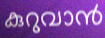
കുറുവാൻ